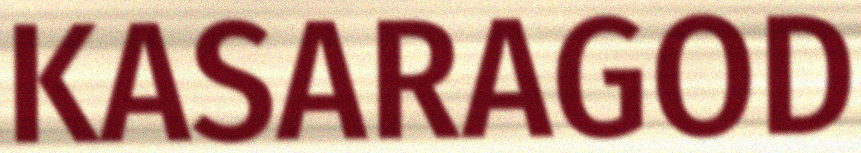
KASARAGOD